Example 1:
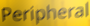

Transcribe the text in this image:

Peripheral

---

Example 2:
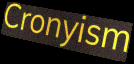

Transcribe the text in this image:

Cronyism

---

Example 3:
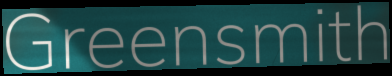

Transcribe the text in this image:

Greensmith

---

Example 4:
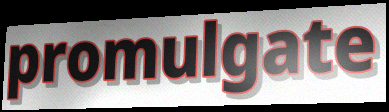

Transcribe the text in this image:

promulgate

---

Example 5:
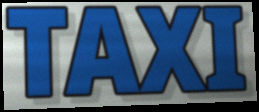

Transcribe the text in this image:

TAXI